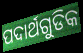
ପଦାର୍ଥଗୁଡିକ